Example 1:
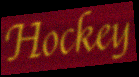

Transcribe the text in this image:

Hockey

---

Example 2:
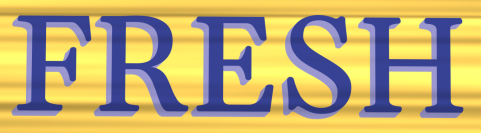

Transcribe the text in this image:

FRESH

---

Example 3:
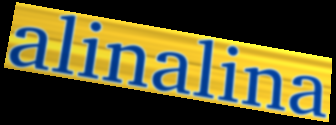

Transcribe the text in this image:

alinalina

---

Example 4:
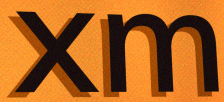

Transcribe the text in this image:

xm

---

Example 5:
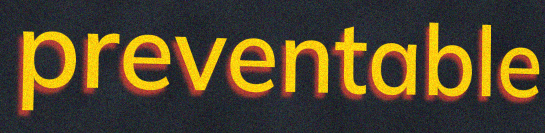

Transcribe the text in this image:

preventable